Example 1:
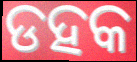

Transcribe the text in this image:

ଡହକ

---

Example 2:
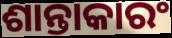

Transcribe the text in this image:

ଶାନ୍ତାକାରଂ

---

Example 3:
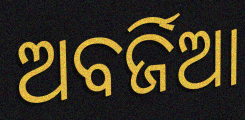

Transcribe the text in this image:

ଅବର୍ଜିଆ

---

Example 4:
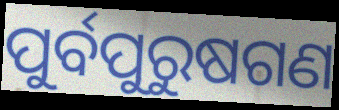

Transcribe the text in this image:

ପୁର୍ବପୁରୁଷଗଣ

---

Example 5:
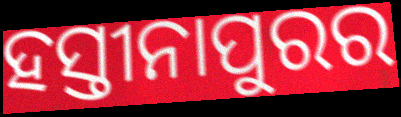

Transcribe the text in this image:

ହସ୍ତୀନାପୁରର